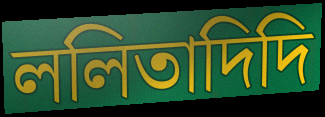
ললিতাদিদি